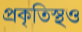
প্রকৃতিস্থও